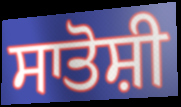
ਸਾਤੋਸ਼ੀ